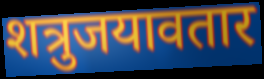
शत्रुजयावतार